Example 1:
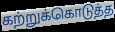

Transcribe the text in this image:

கற்றுக்கொடுத்த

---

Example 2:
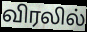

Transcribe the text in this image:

விரலில்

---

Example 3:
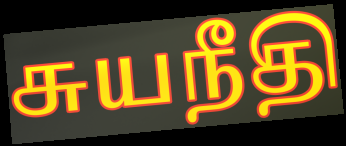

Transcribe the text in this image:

சுயநீதி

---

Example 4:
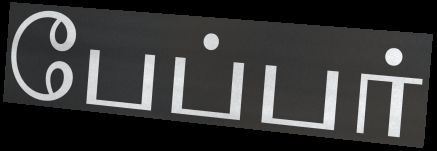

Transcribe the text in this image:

பேப்பர்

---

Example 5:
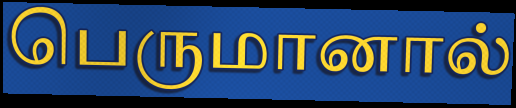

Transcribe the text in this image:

பெருமானால்